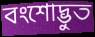
বংশোদ্ভুত